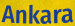
Ankara